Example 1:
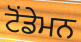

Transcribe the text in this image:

ਟੋਂਡੇਮਨ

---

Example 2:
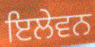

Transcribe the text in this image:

ਇਲੇਵਨ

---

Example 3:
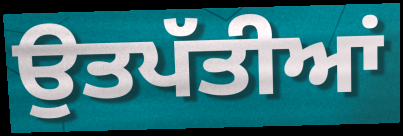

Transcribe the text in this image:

ਉਤਪੱਤੀਆਂ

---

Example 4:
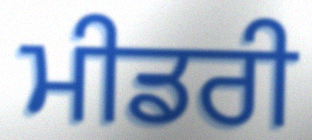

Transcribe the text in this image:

ਮੀਡਰੀ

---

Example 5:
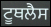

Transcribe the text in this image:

ਟੂਥਲੈਸ